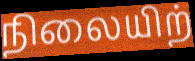
நிலையிற்